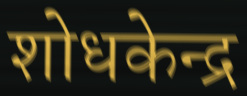
शोधकेन्द्र